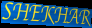
SHEKHAR